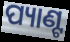
ପ୍ୟାଣ୍ଟ